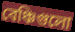
বেঞ্চিগুলো